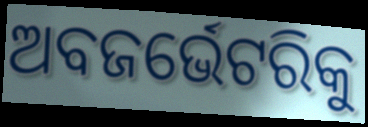
ଅବଜର୍ଭେଟରିକୁ